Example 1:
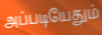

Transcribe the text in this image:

அப்படியேதும்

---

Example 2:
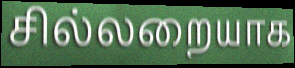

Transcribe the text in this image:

சில்லறையாக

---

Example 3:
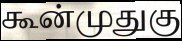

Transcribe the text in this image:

கூன்முதுகு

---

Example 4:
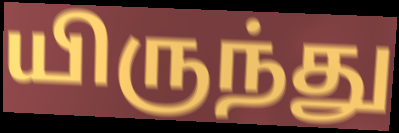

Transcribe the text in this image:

யிருந்து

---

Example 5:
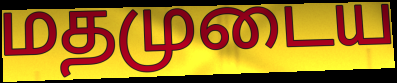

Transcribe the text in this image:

மதமுடைய